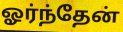
ஓர்ந்தேன்